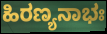
ಹಿರಣ್ಯನಾಭಃ